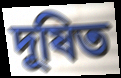
দূষিত